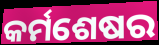
କର୍ମଶେଷର